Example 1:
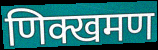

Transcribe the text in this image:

णिक्खमण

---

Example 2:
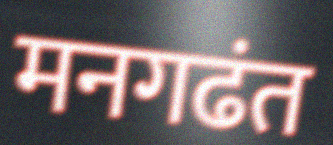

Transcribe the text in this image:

मनगढंत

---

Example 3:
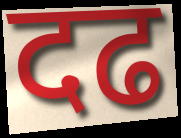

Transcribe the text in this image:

दढ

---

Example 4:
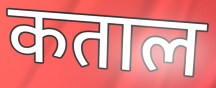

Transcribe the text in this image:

कताल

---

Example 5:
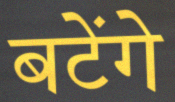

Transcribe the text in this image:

बटेंगे